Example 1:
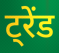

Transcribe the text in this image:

ट्रेंड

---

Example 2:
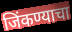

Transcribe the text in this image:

जिंकण्याचा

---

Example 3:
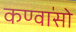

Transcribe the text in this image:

कण्वा॑सो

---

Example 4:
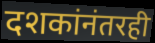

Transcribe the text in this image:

दशकांनंतरही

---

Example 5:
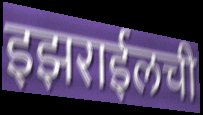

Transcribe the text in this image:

इझराईलची